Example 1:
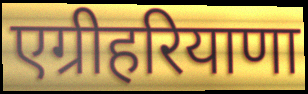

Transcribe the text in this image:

एग्रीहरियाणा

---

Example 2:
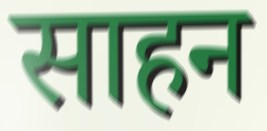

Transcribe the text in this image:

साहन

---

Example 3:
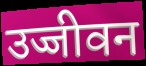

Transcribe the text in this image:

उज्जीवन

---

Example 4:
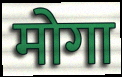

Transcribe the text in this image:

मोगा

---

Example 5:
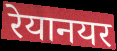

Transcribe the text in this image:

रेयानयर